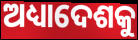
ଅଧ୍ୟାଦେଶକୁ